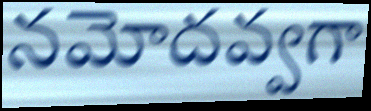
నమోదవ్వగా